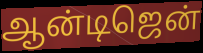
ஆன்டிஜென்